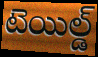
టెయిల్డ్